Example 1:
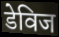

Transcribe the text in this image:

डेविज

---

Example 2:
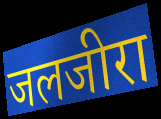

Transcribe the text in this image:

जलजीरा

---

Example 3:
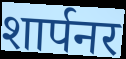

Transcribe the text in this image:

शार्पनर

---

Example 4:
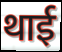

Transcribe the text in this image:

थाई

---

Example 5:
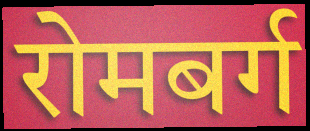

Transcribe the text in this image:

रोमबर्ग